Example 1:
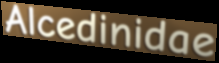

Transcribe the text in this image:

Alcedinidae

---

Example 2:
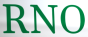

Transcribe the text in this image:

RNO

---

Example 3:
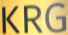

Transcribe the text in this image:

KRG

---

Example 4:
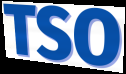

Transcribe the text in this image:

TSO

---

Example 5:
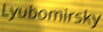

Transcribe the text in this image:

Lyubomirsky